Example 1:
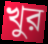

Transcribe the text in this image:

খুর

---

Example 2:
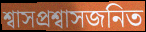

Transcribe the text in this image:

শ্বাসপ্রশ্বাসজনিত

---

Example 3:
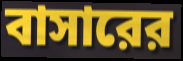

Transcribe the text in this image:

বাসারের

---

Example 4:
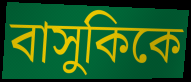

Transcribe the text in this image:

বাসুকিকে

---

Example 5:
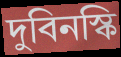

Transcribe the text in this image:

দুবিনস্কি